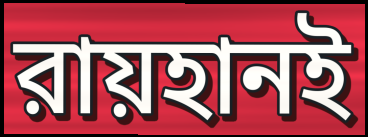
রায়হানই